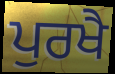
ਪੁਰਖੈ